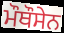
ਮੌਥੌਸੇਨ